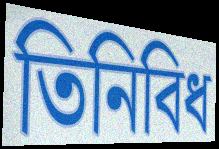
তিনিবিধ